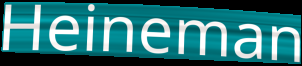
Heineman